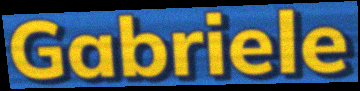
Gabriele